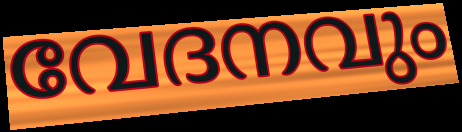
വേദനവും